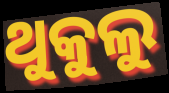
ଥୁକୁଲୁ